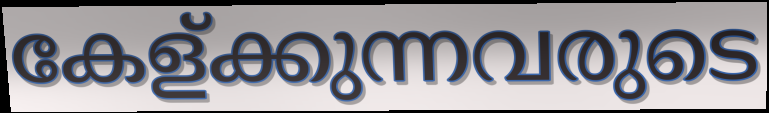
കേള്ക്കുന്നവരുടെ